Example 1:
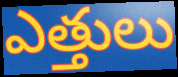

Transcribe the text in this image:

ఎత్తులు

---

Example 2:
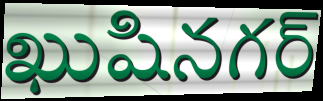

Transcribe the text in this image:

ఖుషినగర్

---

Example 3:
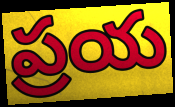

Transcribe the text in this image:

ప్రయ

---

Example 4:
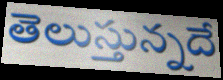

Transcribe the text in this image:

తెలుస్తున్నదే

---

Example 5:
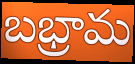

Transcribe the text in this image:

బభ్రామ